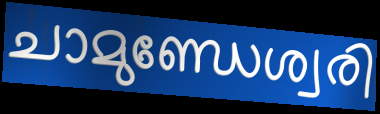
ചാമുണ്ഡേശ്വരി